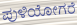
ಪುಳಿಯೋಗರೆ